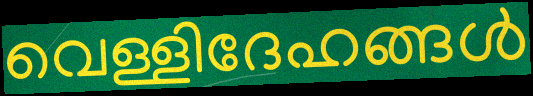
വെള്ളിദേഹങ്ങൾ